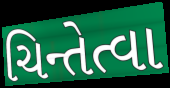
ચિન્તેત્વા